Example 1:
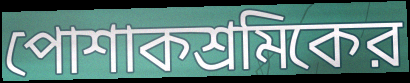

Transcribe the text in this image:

পোশাকশ্রমিকের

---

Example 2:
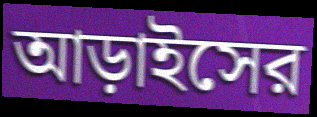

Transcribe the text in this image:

আড়াইসের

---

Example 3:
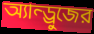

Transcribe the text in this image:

অ্যান্ড্রুজের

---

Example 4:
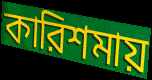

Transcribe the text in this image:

কারিশমায়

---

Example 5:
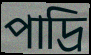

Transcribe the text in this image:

পাদ্রি